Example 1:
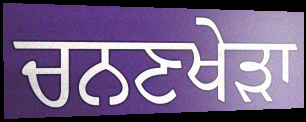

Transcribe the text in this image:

ਚਨਣਖੇੜਾ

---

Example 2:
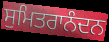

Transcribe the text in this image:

ਸੁਮਿਤਰਾਨੰਦਨ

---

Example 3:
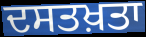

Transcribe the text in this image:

ਦਸਤਖ਼ਤਾ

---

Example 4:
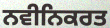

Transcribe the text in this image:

ਨਵੀਨਿਕਰਤ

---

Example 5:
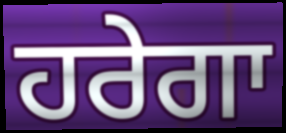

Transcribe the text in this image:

ਹਰੇਗਾ